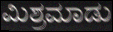
ಮಿಶ್ರಮಾಡು